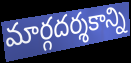
మార్గదర్శకాన్ని